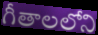
గీతాలలోని